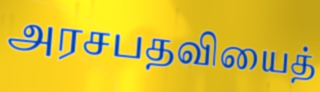
அரசபதவியைத்